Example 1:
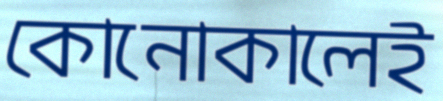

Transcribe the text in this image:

কোনোকালেই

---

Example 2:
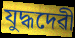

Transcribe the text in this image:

যুদ্ধদেৱী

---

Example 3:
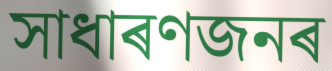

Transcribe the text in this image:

সাধাৰণজনৰ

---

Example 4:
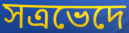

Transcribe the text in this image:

সত্ৰভেদে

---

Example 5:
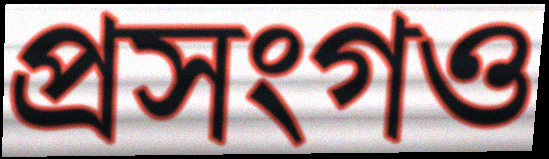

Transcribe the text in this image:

প্ৰসংগও